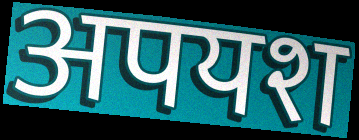
अपयश